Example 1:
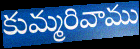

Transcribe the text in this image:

కుమ్మరివాము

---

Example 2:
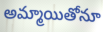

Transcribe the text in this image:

అమ్మాయితోనూ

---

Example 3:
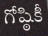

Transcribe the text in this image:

గోష్ఠికీ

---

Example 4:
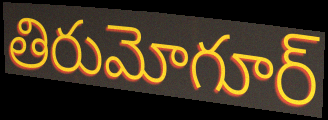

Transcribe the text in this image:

తిరుమోగూర్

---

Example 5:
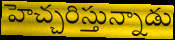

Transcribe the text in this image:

హెచ్చరిస్తున్నాడు